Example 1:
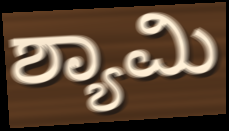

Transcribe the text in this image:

ಶ್ಯಾಮಿ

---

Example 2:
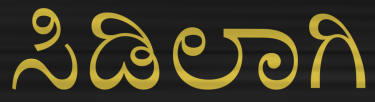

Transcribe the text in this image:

ಸಿಡಿಲಾಗಿ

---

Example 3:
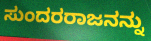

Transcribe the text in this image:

ಸುಂದರರಾಜನನ್ನು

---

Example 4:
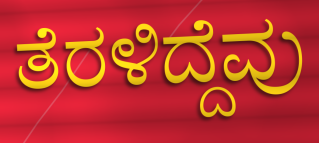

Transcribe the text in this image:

ತೆರಳಿದ್ದೆವು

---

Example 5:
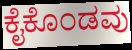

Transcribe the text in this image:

ಕೈಕೊಂಡವು